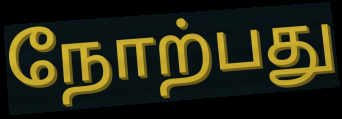
நோற்பது